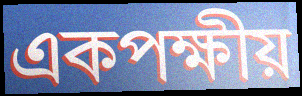
একপক্ষীয়